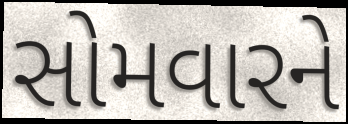
સોમવારને